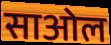
साओल